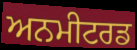
ਅਨਮੀਟਰਡ